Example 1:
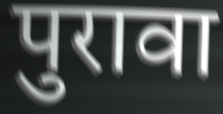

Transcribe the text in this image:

पुरावा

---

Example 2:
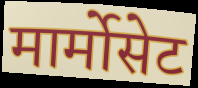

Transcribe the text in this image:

मार्मोसेट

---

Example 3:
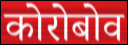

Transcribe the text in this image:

कोरोबोव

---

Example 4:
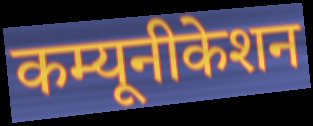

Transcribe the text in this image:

कम्यूनीकेशन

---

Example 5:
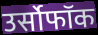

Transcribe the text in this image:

उर्सोफॉक